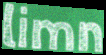
limn